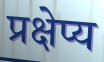
प्रक्षेप्य